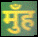
मुँह